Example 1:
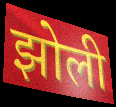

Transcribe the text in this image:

झोली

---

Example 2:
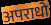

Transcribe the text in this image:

अपराधो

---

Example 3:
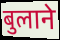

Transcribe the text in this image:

बुलाने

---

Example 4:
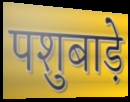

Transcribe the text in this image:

पशुबाड़े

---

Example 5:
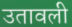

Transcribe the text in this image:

उतावली